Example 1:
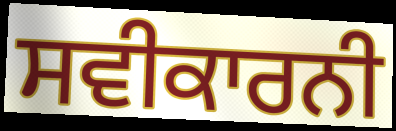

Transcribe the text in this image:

ਸਵੀਕਾਰਨੀ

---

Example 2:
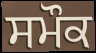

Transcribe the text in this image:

ਸਮੌਕ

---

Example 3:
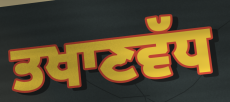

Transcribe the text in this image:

ਤਖਾਣਵੱਧ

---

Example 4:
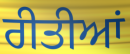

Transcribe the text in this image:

ਰੀਤੀਆਂ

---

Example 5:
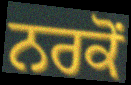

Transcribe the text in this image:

ਨਰਕੋਂ